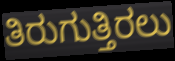
ತಿರುಗುತ್ತಿರಲು